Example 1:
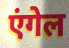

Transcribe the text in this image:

एंगेल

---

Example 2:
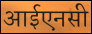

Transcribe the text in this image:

आईएनसी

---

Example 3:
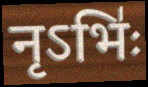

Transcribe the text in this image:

नृऽभिः॑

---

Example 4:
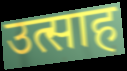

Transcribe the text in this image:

उत्‍साह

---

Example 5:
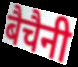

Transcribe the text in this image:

बैचैनी